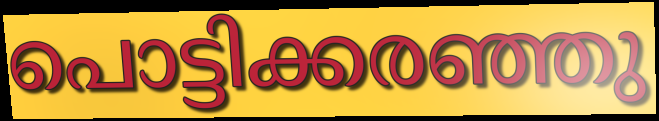
പൊട്ടിക്കരഞ്ഞു